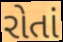
રોતાં